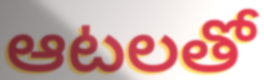
ఆటలతో